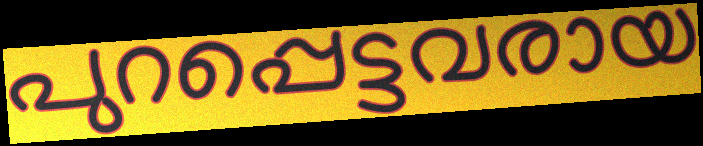
പുറപ്പെട്ടവരായ